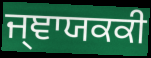
ਜ੍ਞਾਯਕਕੀ